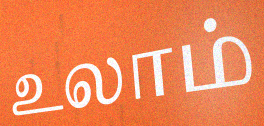
உலாம்